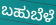
ಬಹುಬೆಳೆ